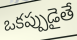
ఒకప్పుడైతే